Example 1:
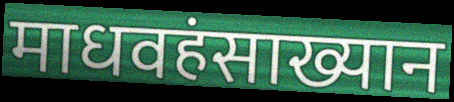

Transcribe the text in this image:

माधवहंसाख्यान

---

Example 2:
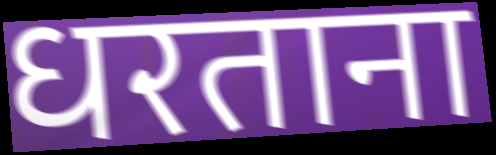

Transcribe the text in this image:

धरताना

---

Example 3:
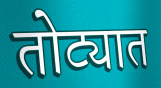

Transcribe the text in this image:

तोट्यात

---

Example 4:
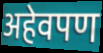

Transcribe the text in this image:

अहेवपण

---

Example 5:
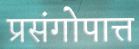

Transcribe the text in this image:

प्रसंगोपात्त